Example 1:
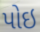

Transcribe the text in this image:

પોઇ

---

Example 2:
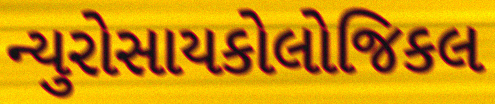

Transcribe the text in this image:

ન્યુરોસાયકોલોજિકલ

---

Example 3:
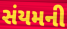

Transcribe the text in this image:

સંયમની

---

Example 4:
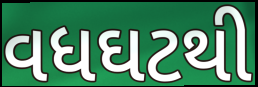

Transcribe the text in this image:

વધઘટથી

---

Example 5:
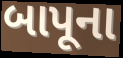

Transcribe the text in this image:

બાપૂના